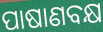
ପାଷାଣବକ୍ଷ